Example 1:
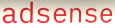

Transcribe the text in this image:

adsense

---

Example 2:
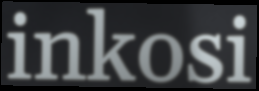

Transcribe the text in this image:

inkosi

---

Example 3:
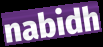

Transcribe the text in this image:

nabidh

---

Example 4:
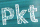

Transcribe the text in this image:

Pkt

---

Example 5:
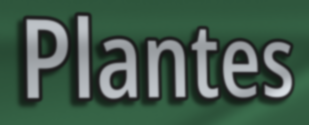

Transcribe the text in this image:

Plantes